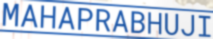
MAHAPRABHUJI